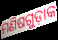
ମଣିଷଗୁଡ଼ାକ